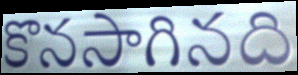
కొనసాగినది